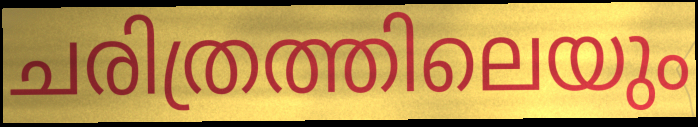
ചരിത്രത്തിലെയും